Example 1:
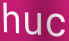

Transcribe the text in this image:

huc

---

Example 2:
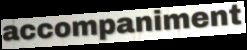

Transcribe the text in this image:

accompaniment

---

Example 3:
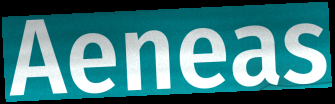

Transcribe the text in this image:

Aeneas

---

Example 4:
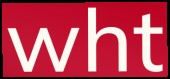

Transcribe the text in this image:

wht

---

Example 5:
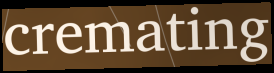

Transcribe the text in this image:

cremating